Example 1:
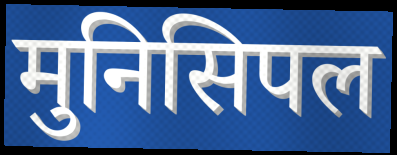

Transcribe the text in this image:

मुनिसिपल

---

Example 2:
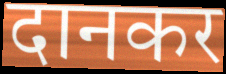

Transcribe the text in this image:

दानकर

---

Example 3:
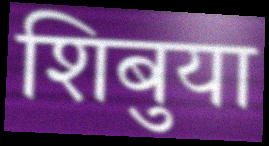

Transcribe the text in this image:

शिबुया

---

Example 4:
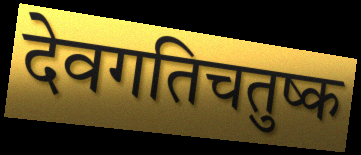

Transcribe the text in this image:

देवगतिचतुष्क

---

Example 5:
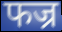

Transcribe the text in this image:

फज्र